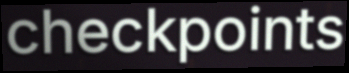
checkpoints